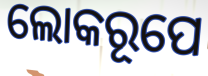
ଲୋକରୂପେ